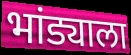
भांड्याला